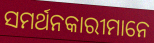
ସମର୍ଥନକାରୀମାନେ